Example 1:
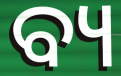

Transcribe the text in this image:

ବ୍ୟ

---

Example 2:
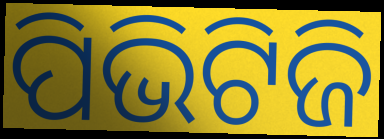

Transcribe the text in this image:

ପିଭିଟିଜି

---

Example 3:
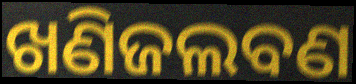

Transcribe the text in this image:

ଖଣିଜଲବଣ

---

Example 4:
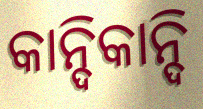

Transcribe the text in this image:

କାନ୍ଦିକାନ୍ଦି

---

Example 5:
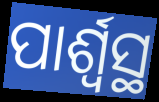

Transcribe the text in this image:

ପାର୍ଶ୍ୱସ୍ଥ